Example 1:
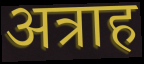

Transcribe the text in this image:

अत्राह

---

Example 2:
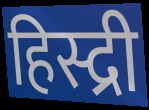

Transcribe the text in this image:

हिस्द्री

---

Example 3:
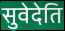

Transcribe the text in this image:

सुवेदेति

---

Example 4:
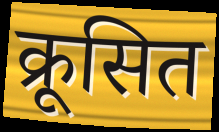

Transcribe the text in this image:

क्रूसित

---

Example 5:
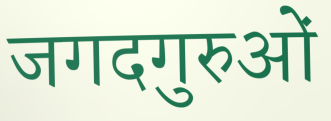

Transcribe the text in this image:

जगदगुरुओं